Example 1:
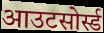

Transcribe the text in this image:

आउटसोर्स्ड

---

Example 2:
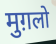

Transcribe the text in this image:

मुग़लो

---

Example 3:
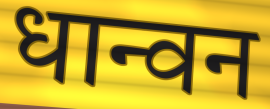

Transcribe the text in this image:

धान्वन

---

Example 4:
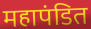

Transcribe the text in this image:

महापंडित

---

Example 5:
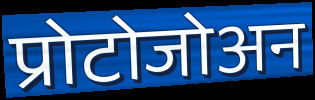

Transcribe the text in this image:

प्रोटोजोअन